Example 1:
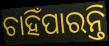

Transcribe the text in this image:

ଚାହିଁପାରନ୍ତି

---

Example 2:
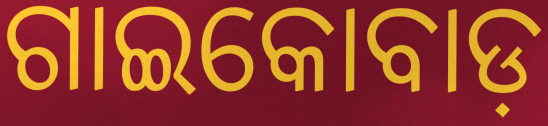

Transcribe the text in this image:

ଗାଇକୋବାଡ଼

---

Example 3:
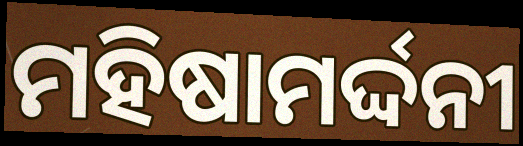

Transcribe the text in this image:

ମହିଷାମର୍ଦ୍ଦନୀ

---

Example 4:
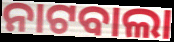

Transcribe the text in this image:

ନାଟବାଲା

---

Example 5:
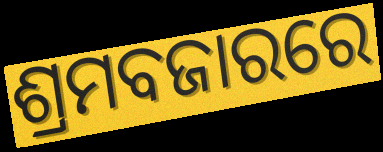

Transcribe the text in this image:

ଶ୍ରମବଜାରରେ